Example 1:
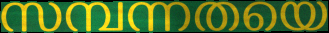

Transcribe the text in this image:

സമ്പന്നതയെ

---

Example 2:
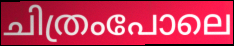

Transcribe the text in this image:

ചിത്രംപോലെ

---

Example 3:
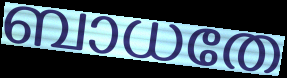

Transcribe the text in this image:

ബാധതേ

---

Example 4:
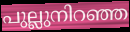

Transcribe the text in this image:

പുല്ലുനിറഞ്ഞ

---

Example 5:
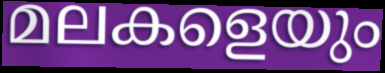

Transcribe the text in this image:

മലകളെയും